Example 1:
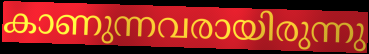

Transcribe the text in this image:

കാണുന്നവരായിരുന്നു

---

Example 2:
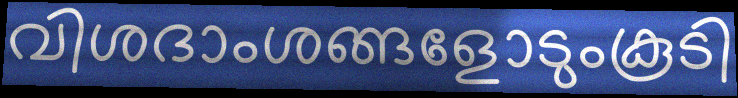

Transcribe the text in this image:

വിശദാംശങ്ങളോടുംകൂടി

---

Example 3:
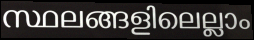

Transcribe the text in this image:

സ്ഥലങ്ങളിലെല്ലാം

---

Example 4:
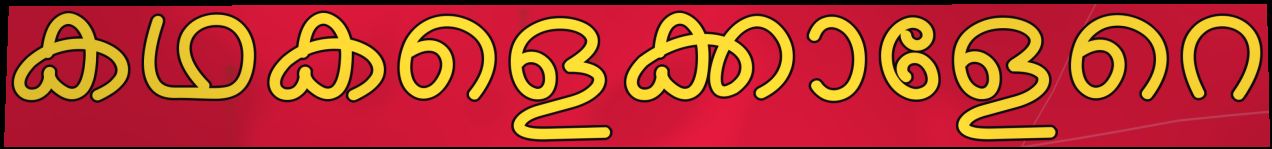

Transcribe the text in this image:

കഥകളെക്കാളേറെ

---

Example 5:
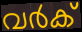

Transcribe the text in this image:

വർക്